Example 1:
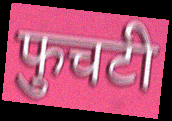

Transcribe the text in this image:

फुचटी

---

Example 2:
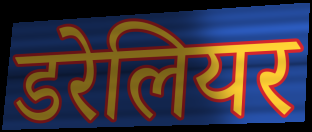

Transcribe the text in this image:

डरेलियर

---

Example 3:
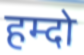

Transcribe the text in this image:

हम्दो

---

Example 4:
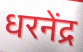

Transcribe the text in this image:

धरनेंद्र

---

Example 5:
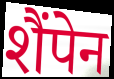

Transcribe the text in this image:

शैंपेन